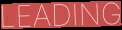
LEADING